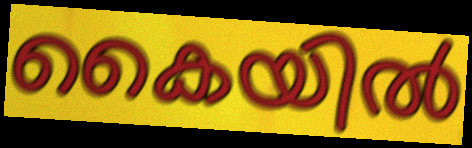
കൈയിൽ